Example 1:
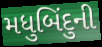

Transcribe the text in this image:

મધુબિંદુની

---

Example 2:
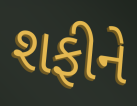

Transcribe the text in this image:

શફીને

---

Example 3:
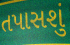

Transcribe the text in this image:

તપાસશું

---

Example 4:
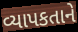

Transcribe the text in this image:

વ્યાપકતાને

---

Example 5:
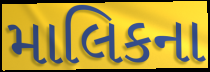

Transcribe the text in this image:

માલિકના